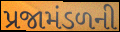
પ્રજામંડળની